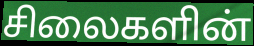
சிலைகளின்